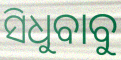
ସିଧୁବାବୁ